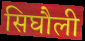
सिघौली